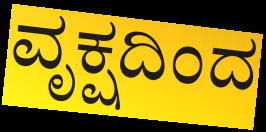
ವೃಕ್ಷದಿಂದ